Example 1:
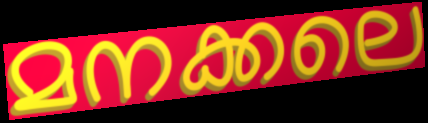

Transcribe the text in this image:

മനക്കലെ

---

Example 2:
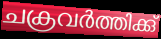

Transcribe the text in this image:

ചക്രവർത്തിക്കു്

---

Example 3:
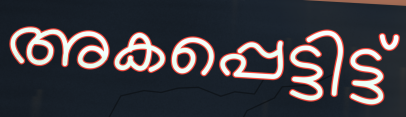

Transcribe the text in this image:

അകപ്പെട്ടിട്ട്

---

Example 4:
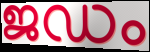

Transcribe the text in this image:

ജഡം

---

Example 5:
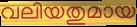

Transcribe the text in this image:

വലിയതുമായ